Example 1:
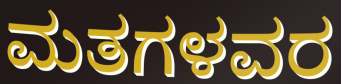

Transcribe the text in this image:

ಮತಗಳವರ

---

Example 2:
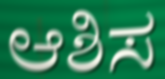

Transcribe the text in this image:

ಆಶಿಸ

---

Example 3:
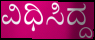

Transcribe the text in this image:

ವಿಧಿಸಿದ್ದ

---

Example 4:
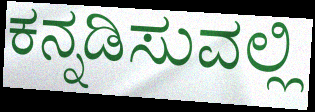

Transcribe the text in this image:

ಕನ್ನಡಿಸುವಲ್ಲಿ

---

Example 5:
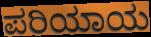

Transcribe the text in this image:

ಪರಿಯಾಯ